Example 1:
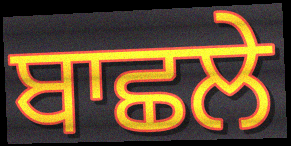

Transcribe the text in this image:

ਬਾਛਲੇ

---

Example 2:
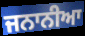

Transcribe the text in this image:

ਜਨਾਨੀਆ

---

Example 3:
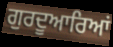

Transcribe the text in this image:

ਗੁਰਦੂਆਰਿਆਂ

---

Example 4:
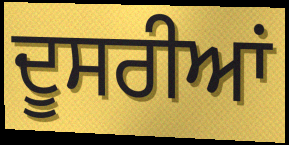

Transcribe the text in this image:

ਦੂਸਰੀਆਂ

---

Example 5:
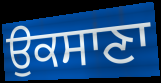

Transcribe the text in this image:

ਉਕਸਾਣਾ